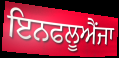
ਇਨਫਲੂਐਂਜਾ